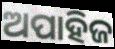
ଅପାହିଜ